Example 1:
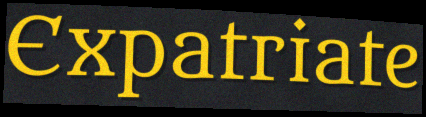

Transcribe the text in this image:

Expatriate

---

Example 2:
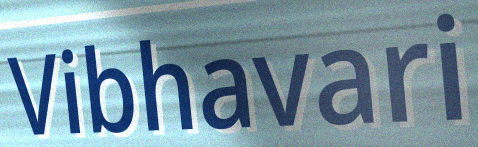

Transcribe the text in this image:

Vibhavari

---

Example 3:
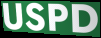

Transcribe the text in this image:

USPD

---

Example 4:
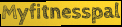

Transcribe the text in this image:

Myfitnesspal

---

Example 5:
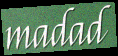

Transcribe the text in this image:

madad